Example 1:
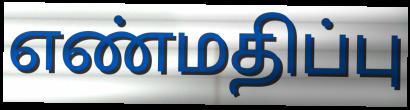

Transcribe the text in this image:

எண்மதிப்பு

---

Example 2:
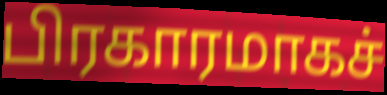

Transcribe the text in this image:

பிரகாரமாகச்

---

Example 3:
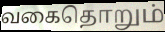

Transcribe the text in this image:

வகைதொறும்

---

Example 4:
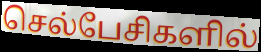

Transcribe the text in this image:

செல்பேசிகளில்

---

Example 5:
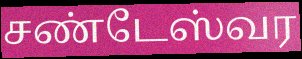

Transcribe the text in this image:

சண்டேஸ்வர